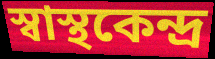
স্বাস্থকেন্দ্র